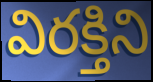
విరక్తిని